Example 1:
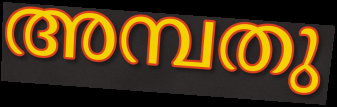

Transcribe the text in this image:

അമ്പതു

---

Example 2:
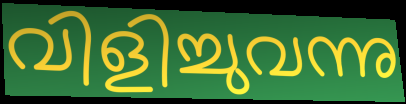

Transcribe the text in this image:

വിളിച്ചുവന്നു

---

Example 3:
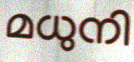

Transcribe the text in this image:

മധുനി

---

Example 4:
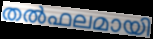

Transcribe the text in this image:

തൽഫലമായി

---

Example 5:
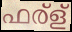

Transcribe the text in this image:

ഫര്ള്